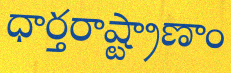
ధార్తరాష్ట్రాణాం